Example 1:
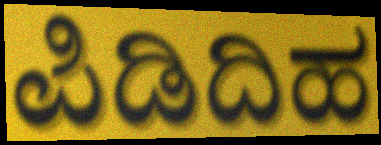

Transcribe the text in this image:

ಪಿಡಿದಿಹ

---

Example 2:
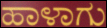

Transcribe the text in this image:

ಹಾಳಾಗು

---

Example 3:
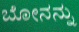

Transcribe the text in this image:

ಬೋನನ್ನು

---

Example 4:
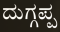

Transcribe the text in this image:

ದುಗ್ಗಪ್ಪ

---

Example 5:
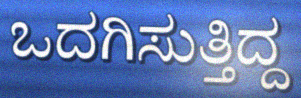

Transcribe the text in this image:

ಒದಗಿಸುತ್ತಿದ್ದ